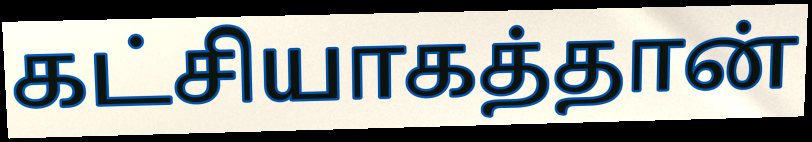
கட்சியாகத்தான்